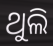
ଥୁଲି